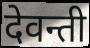
देवन्ती